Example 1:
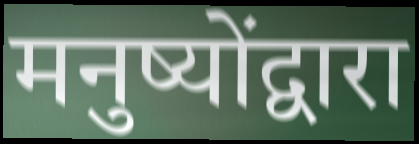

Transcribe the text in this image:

मनुष्योंद्वारा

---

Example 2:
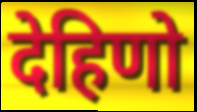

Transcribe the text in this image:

देहिणो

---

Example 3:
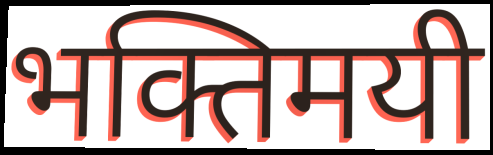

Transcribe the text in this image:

भक्तिमयी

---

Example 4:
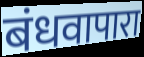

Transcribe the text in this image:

बंधवापारा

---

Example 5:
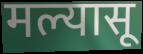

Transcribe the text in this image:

मल्यासू